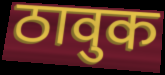
ठावुक